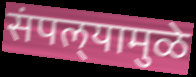
संपल्यामुळे